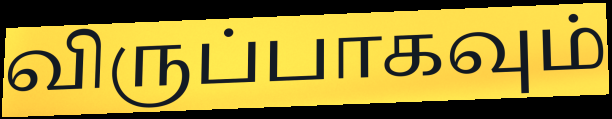
விருப்பாகவும்